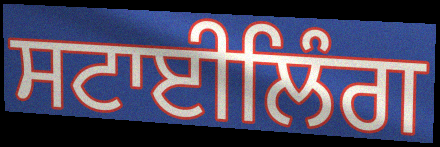
ਸਟਾਈਲਿੰਗ